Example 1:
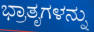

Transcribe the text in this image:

ಭ್ರಾತೃಗಳನ್ನು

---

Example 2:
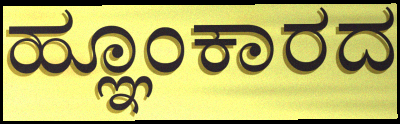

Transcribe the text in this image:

ಹ್ಞೂಂಕಾರದ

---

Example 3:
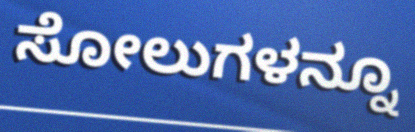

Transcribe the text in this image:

ಸೋಲುಗಳನ್ನೂ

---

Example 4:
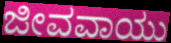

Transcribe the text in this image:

ಜೀವವಾಯು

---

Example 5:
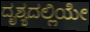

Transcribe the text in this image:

ದೃಶ್ಯದಲ್ಲಿಯೇ